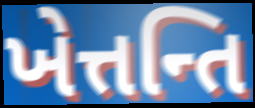
ખેત્તન્તિ